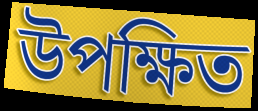
উপক্ষিত